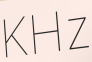
KHz